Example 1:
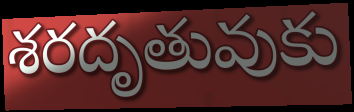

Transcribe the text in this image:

శరదృతువుకు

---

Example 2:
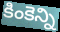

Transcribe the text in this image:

కింకెన్ని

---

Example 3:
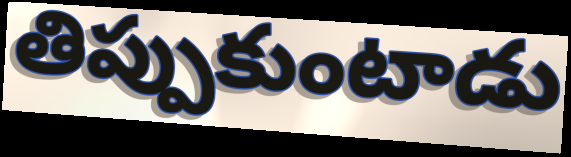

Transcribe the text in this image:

తిప్పుకుంటాడు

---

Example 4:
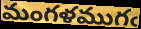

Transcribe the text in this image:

మంగళముగఁ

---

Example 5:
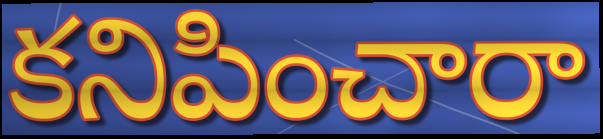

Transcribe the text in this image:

కనిపించారా